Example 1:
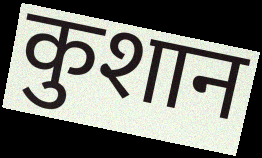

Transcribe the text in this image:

कुशान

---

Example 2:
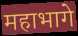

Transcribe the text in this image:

महाभागे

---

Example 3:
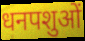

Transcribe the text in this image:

धनपशुओं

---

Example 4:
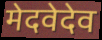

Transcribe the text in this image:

मेदवेदेव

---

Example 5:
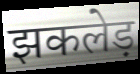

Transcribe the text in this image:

झकलेड़